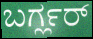
ಬರ್ಗ್ಲರ್